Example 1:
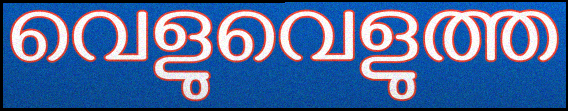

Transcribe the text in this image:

വെളുവെളുത്ത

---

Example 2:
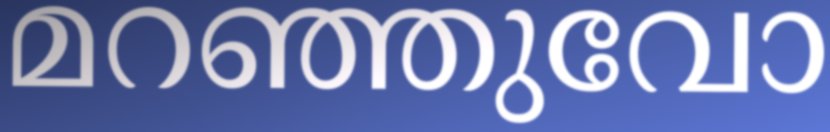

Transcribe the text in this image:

മറഞ്ഞുവോ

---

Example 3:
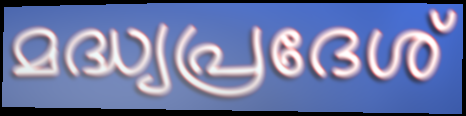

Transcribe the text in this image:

മദ്ധ്യപ്രദേശ്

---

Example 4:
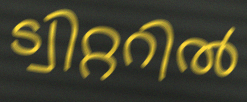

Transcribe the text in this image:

ട്വിറ്ററിൽ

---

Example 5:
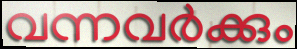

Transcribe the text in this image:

വന്നവർക്കും